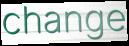
change